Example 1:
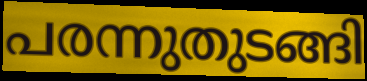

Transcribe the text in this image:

പരന്നുതുടങ്ങി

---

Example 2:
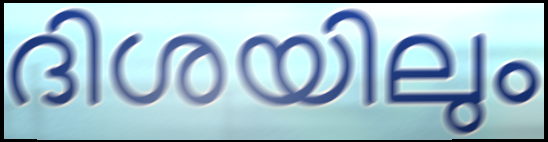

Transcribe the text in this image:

ദിശയിലും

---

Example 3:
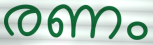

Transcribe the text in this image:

രണം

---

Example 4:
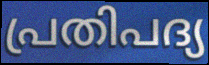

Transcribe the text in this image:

പ്രതിപദ്യ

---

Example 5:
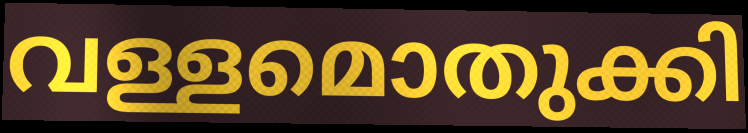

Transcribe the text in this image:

വള്ളമൊതുക്കി